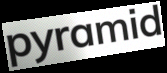
pyramid